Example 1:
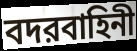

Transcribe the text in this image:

বদরবাহিনী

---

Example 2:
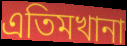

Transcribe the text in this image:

এতিমখানা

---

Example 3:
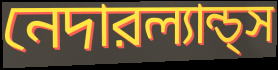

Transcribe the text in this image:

নেদারল্যান্ড্‌স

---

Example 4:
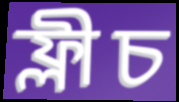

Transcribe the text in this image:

ফ্লীচ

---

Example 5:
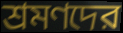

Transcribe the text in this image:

শ্রমণদের